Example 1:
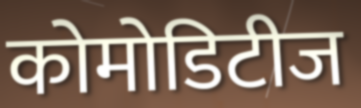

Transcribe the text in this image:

कोमोडिटीज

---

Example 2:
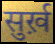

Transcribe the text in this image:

सुर्ख़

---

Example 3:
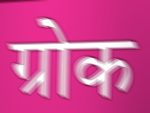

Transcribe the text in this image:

ग्रोक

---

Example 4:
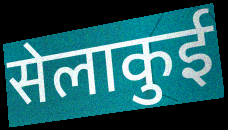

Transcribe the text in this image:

सेलाकुई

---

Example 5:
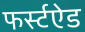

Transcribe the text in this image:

फर्स्टऐड